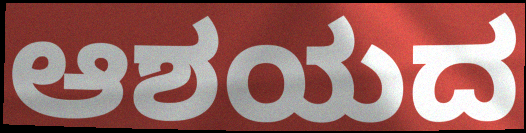
ಆಶಯದ